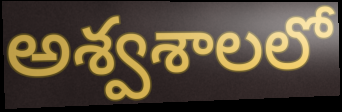
అశ్వశాలలో